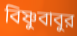
বিষ্ণুবাবুর